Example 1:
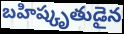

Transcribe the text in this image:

బహిష్కృతుడైన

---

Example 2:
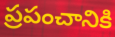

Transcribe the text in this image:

ప్రపంచానికి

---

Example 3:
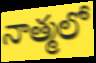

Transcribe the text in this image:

నాత్మలో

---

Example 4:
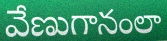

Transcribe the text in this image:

వేణుగానంలా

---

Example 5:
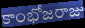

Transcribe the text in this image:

కాంభోజరాజు